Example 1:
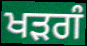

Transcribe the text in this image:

ਖੜਗੰ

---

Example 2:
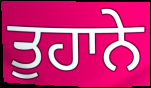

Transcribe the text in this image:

ਤੁਹਾਨੇ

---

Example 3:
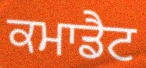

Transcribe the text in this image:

ਕਮਾਡੈਟ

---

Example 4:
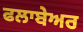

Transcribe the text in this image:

ਫਲਾਬੇਅਰ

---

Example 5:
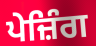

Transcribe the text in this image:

ਪੇਜ਼ਿੰਗ